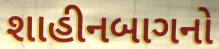
શાહીનબાગનો